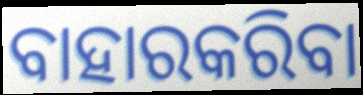
ବାହାରକରିବା